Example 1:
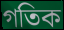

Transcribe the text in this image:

গতিক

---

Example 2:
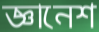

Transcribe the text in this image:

জ্ঞানেশ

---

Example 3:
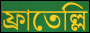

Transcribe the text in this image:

ফ্রাতেল্লি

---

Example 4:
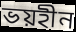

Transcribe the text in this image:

ভয়হীন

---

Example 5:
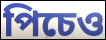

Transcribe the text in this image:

পিচেও